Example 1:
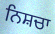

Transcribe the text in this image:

ਨਿਸ਼ਚਾ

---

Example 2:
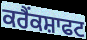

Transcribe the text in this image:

ਕਰੈਂਕਸ਼ਾਫਟ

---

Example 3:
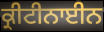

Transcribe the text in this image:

ਕ੍ਰੀਟੀਨਾਈਨ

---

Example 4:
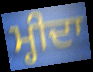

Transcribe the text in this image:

ਮ੍ਹੀਦਾ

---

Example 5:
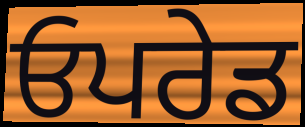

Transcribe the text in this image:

ਓਪਰੇਡ